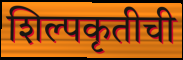
शिल्पकृतीची